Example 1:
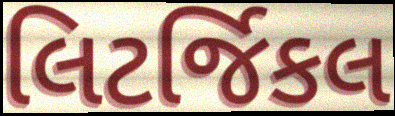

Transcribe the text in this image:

લિટર્જિકલ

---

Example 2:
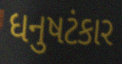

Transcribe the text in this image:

ધનુષટંકાર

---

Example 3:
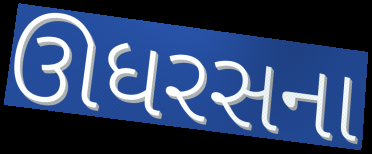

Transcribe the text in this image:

ઊધરસના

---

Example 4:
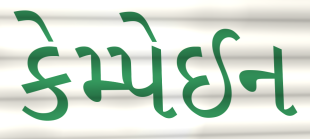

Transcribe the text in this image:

કેમ્પેઈન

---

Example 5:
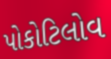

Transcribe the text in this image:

પોકોટિલોવ